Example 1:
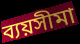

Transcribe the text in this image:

ব্যয়সীমা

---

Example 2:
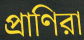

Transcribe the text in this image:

প্রাণিরা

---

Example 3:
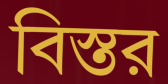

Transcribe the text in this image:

বিস্তর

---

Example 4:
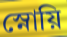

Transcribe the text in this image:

স্নোয়ি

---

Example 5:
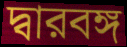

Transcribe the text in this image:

দ্বারবঙ্গ